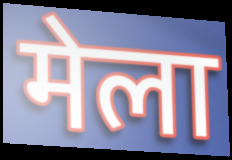
मेला